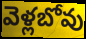
వెళ్లబోవు